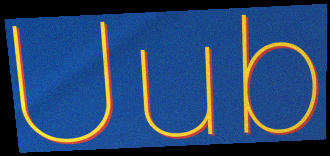
Uub